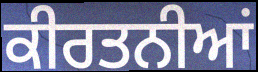
ਕੀਰਤਨੀਆਂ